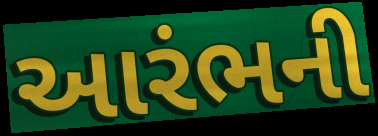
આરંભની